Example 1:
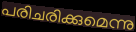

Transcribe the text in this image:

പരിചരിക്കുമെന്നു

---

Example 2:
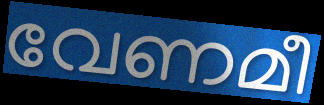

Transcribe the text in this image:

വേണമീ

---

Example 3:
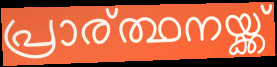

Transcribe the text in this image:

പ്രാര്ത്ഥനയ്ക്ക്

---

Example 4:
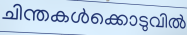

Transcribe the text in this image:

ചിന്തകൾക്കൊടുവിൽ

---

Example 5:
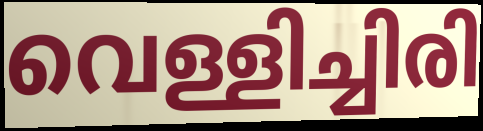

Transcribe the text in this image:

വെള്ളിച്ചിരി